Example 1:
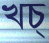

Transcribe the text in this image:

খচ্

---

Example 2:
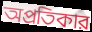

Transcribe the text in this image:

অপ্রতিকার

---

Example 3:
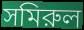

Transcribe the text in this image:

সমিরুল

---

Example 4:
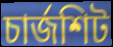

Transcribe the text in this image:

চার্জশিট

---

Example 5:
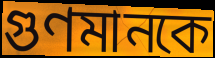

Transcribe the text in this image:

গুণমানকে